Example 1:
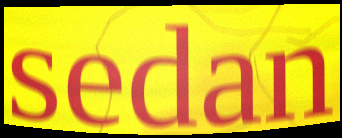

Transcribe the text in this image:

sedan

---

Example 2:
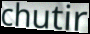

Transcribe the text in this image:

chutir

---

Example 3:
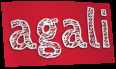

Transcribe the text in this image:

agali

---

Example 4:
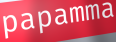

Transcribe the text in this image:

papamma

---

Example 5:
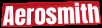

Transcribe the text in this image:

Aerosmith